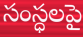
సంస్ధలపై